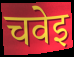
चवेइ